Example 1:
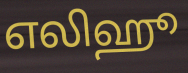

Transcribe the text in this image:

எலிஹூ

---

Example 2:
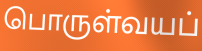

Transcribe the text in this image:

பொருள்வயப்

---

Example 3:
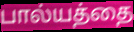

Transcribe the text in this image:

பால்யத்தை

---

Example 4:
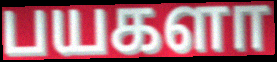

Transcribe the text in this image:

பயகளா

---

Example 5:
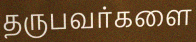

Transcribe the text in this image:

தருபவர்களை